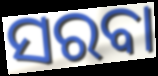
ସରବା